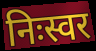
निःस्वर